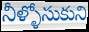
నీళ్ళోసుకుని